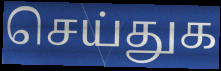
செய்துக